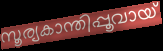
സൂര്യകാന്തിപ്പൂവായ്